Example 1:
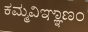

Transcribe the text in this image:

ಕಮ್ಮವಿಞ್ಞಾಣಂ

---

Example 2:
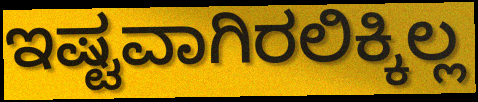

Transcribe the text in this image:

ಇಷ್ಟವಾಗಿರಲಿಕ್ಕಿಲ್ಲ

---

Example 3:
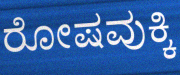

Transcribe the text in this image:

ರೋಷವುಕ್ಕಿ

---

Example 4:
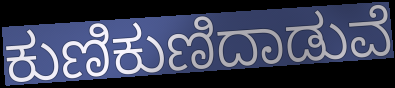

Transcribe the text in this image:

ಕುಣಿಕುಣಿದಾಡುವೆ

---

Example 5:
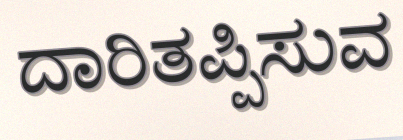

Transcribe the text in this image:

ದಾರಿತಪ್ಪಿಸುವ